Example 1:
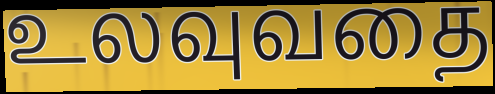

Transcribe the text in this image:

உலவுவதை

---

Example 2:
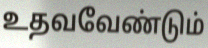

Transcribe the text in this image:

உதவவேண்டும்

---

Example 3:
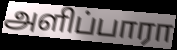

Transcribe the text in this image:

அளிப்பாரா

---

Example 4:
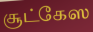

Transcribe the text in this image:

சூட்கேஸ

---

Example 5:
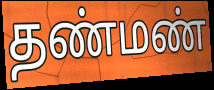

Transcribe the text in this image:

தண்மண்